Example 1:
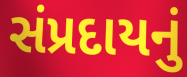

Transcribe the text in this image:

સંપ્રદાયનું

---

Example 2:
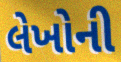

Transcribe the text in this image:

લેખોની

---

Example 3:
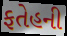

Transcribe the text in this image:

ફતેહની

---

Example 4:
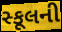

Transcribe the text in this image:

સ્કૂલની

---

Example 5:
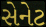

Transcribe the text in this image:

સેનેટ